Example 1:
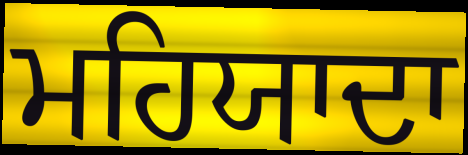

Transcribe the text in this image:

ਮਹਿਯਾਦਾ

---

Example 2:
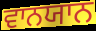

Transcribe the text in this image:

ਵਾਨਯਾਨ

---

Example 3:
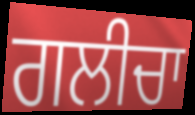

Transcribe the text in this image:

ਗਲੀਚਾ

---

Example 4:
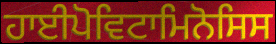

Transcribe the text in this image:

ਹਾਈਪੋਵਿਟਾਮਿਨੋਸਿਸ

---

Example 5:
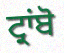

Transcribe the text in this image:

ਟ੍ਰਾਂਬੋ